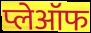
प्‍लेऑफ